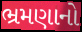
ભ્રમણાનો